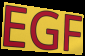
EGF